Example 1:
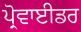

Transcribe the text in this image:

ਪ੍ਰੋਵਾਈਡਰ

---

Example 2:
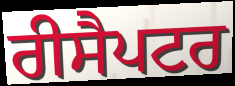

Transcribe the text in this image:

ਰੀਸੈਪਟਰ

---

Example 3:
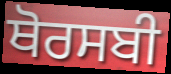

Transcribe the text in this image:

ਥੋਰਸਬੀ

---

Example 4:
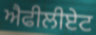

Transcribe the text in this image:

ਐਫੀਲੀਏਟ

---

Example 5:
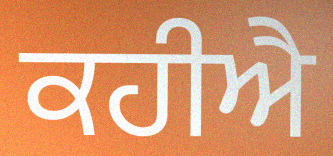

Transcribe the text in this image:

ਕਹੀਐ